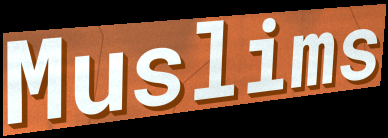
Muslims